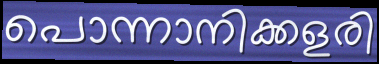
പൊന്നാനിക്കളരി